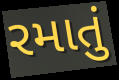
રમાતું